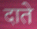
दाते